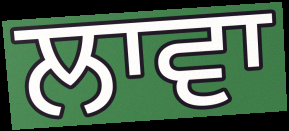
ਲਾਵਾ